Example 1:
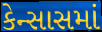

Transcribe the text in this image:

કેન્સાસમાં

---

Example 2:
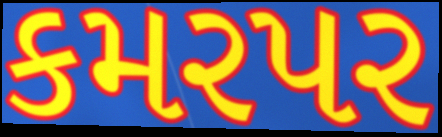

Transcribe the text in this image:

કમરપર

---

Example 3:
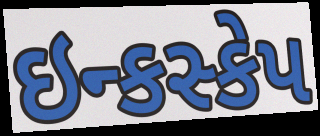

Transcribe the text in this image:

ઇન્કસ્કેપ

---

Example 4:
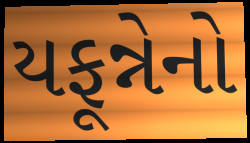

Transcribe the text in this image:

યફૂન્નેનો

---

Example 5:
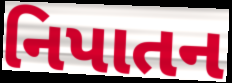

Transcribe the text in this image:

નિપાતન